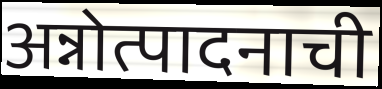
अन्नोत्पादनाची